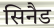
सिनैड